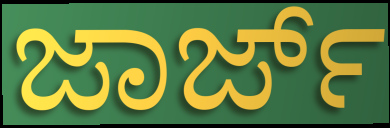
ಜಾರ್ಜ್